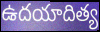
ఉదయాదిత్య